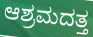
ಆಶ್ರಮದತ್ತ